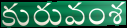
కురువంశ